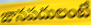
జానపదులంటే